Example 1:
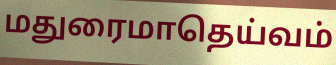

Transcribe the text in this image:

மதுரைமாதெய்வம்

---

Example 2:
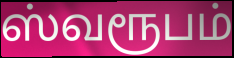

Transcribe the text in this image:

ஸ்வரூபம்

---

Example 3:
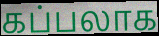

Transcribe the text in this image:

கப்பலாக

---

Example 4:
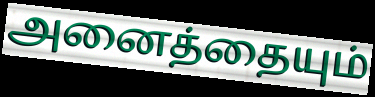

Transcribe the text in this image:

அனைத்தையும்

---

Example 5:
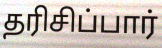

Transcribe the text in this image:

தரிசிப்பார்